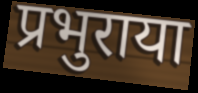
प्रभुराया